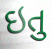
ઇતુ